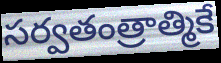
సర్వతంత్రాత్మికే